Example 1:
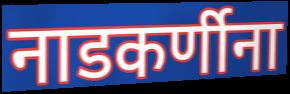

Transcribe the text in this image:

नाडकर्णीना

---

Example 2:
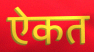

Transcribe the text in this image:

ऐकत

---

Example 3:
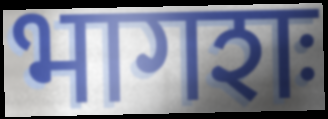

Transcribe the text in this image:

भागशः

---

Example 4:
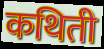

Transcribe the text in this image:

कथिती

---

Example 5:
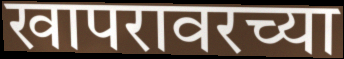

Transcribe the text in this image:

खापरावरच्या